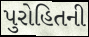
પુરોહિતની